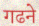
गढने